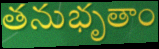
తనుభృతాం